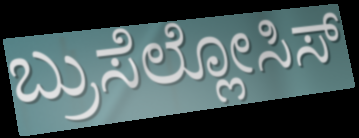
ಬ್ರುಸೆಲ್ಲೋಸಿಸ್